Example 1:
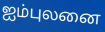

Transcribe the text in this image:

ஐம்புலனை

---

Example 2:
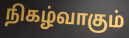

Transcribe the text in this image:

நிகழ்வாகும்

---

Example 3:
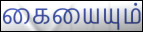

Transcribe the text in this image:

கையையும்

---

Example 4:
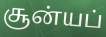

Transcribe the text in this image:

சூன்யப்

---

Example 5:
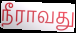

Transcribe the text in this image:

நீராவது